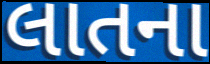
લાતના